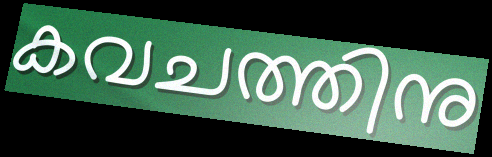
കവചത്തിനു